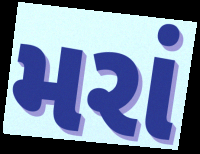
મરાં